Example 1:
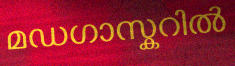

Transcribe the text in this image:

മഡഗാസ്കറിൽ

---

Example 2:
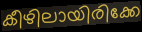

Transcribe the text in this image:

കീഴിലായിരിക്കേ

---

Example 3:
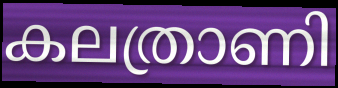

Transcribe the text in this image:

കലത്രാണി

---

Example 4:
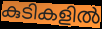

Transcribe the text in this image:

കുടികളിൽ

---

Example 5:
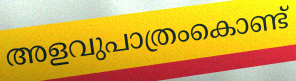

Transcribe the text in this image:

അളവുപാത്രംകൊണ്ട്